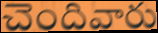
చెందివారు